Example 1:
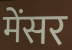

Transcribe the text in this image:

मेंसर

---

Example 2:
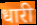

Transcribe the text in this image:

धारी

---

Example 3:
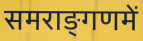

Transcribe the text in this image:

समराङ्गणमें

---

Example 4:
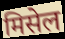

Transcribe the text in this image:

मिसेल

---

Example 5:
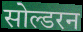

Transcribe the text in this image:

सोल्डरन